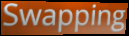
Swapping